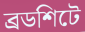
ব্রডশিটে